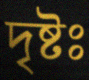
দৃষ্টঃ